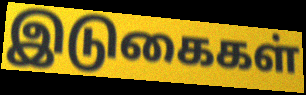
இடுகைகள்